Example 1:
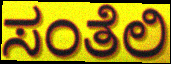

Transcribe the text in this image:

ಸಂತೆಲಿ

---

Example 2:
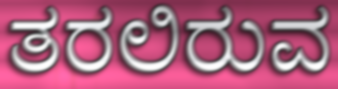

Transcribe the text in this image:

ತರಲಿರುವ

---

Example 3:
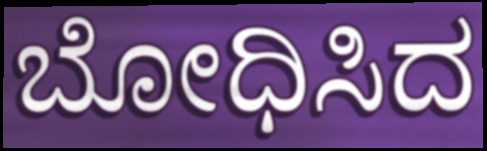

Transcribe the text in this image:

ಬೋಧಿಸಿದ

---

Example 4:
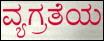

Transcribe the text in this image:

ವ್ಯಗ್ರತೆಯ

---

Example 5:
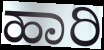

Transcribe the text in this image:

ಹಾರಿ